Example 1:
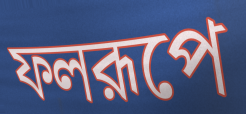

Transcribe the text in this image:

ফলরূপে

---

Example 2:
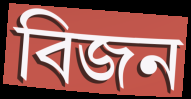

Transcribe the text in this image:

বিজন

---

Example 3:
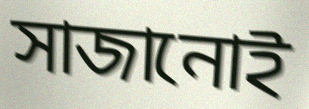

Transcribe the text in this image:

সাজানোই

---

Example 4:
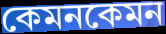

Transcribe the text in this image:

কেমনকেমন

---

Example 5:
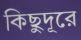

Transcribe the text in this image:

কিছুদূরে